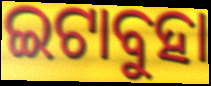
ଇଟାବୁହା